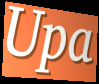
Upa